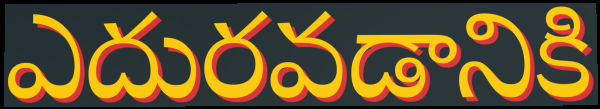
ఎదురవడానికి